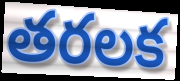
తరలక